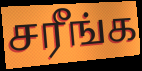
சரீங்க